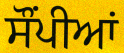
ਸੌਂਪੀਆਂ